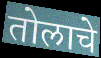
तोलाचे